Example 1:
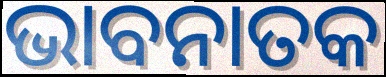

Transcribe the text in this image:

ଭାବନାତକ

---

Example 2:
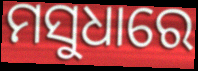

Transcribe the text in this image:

ମସୁଧାରେ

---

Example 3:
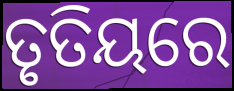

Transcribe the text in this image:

ତୃତିୟରେ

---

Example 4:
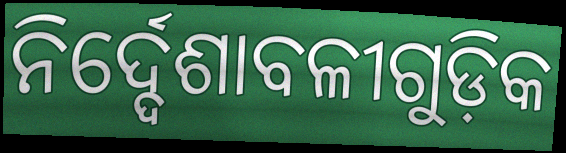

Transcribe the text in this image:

ନିର୍ଦ୍ଦେଶାବଳୀଗୁଡ଼ିକ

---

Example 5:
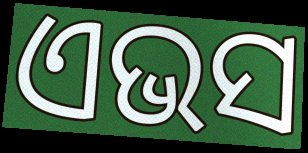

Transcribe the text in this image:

ଏଭସ